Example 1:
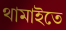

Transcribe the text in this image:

থামাইতে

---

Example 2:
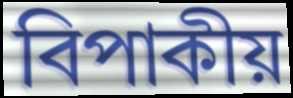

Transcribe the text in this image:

বিপাকীয়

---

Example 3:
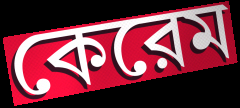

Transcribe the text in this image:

কেরেম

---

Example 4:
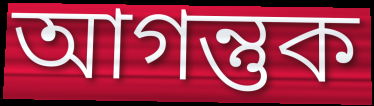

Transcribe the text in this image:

আগন্তুক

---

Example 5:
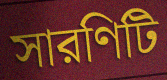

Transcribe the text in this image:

সারণিটি